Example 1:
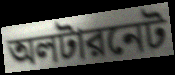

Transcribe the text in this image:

অলটারনেট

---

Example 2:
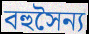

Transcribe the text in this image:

বহুসৈন্য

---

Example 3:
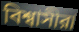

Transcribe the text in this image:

বিশ্বাসীরা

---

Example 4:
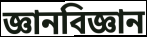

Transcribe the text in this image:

জ্ঞানবিজ্ঞান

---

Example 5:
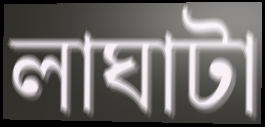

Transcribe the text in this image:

লাঘাটা